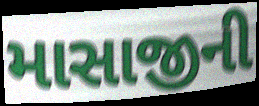
માસાજીની